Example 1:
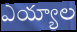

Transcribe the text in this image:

ఎయ్యాల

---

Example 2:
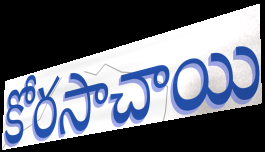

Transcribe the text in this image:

కోరసాచాయి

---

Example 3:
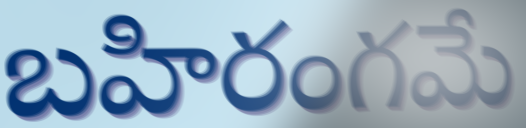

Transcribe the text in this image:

బహిరంగమే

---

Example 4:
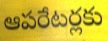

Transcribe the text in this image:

ఆపరేటర్లకు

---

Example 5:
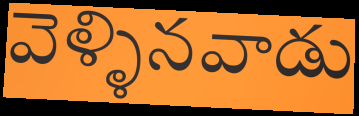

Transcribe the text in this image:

వెళ్ళినవాడు